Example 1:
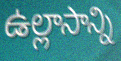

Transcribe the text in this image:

ఉల్లాసాన్ని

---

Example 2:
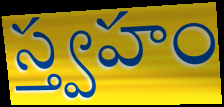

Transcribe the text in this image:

స్త్వహం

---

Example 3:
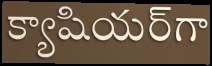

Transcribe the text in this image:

క్యాషియర్‌గా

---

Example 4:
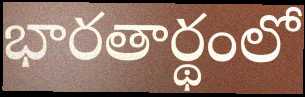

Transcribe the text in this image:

భారతార్థంలో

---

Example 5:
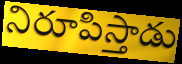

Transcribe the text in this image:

నిరూపిస్తాడు